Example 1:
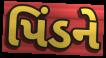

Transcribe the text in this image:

પિંડને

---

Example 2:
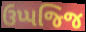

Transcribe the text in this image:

ઉપ્પજ્જિ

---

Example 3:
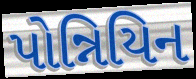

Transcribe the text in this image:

પોન્નિયિન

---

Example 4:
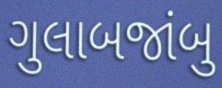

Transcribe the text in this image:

ગુલાબજાંબુ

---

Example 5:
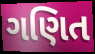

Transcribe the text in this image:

ગણિત